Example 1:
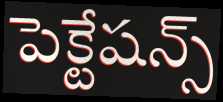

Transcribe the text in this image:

పెక్టేషన్స్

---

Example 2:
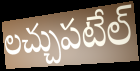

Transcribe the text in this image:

లచ్చుపటేల్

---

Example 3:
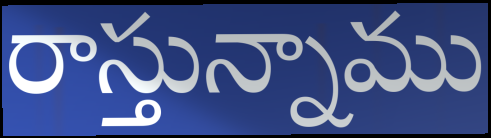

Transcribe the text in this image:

రాస్తున్నాము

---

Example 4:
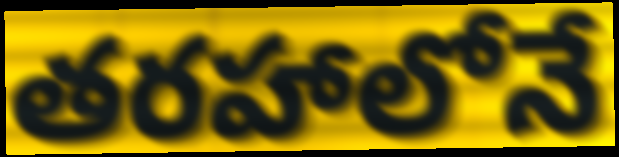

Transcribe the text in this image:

తరహాలోనే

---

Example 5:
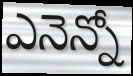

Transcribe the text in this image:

ఎనెన్నో